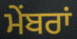
ਮੇਂਬਰਾਂ